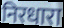
निरधारा